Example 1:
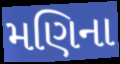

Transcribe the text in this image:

મણિના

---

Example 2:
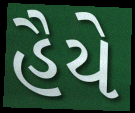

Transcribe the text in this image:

હૈયે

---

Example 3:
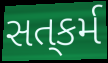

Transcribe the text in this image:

સત્‌કર્મ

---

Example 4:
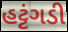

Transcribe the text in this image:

હટ્ટંગડી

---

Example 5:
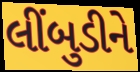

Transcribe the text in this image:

લીંબુડીને